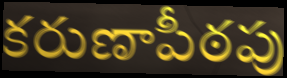
కరుణాపీఠపు